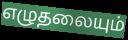
எழுதலையும்